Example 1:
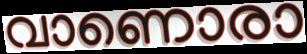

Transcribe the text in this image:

വാണൊരാ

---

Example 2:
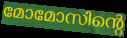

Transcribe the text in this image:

മോമോസിന്റെ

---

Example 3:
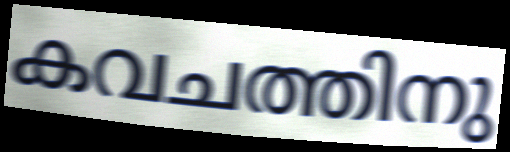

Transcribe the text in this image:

കവചത്തിനു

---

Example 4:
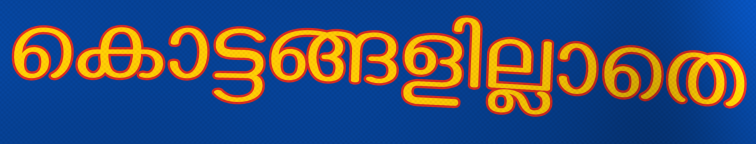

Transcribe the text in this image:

കൊട്ടങ്ങളില്ലാതെ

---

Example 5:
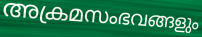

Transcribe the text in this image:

അക്രമസംഭവങ്ങളും